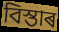
বিস্তাৰ